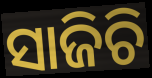
ସାଜିଚି